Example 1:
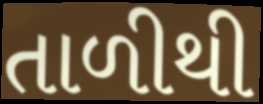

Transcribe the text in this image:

તાળીથી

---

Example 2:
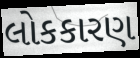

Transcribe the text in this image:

લોકકારણ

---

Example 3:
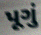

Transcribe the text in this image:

પૂગું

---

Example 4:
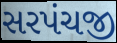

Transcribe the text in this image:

સરપંચજી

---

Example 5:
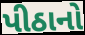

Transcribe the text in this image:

પીઠાનો